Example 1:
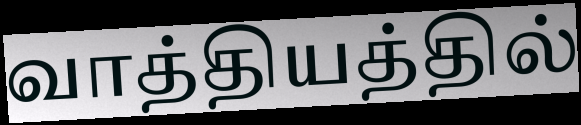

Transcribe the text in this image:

வாத்தியத்தில்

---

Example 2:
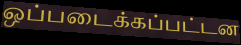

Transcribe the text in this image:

ஒப்படைக்கப்பட்டன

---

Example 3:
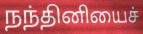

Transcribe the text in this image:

நந்தினியைச்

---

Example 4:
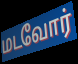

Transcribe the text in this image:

மடவோர்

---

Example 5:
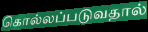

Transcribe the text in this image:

கொல்லப்படுவதால்